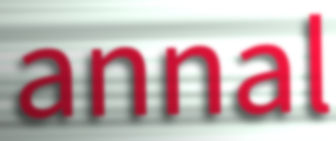
annal